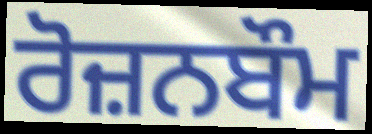
ਰੋਜ਼ਨਬੌਮ